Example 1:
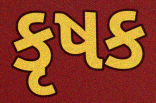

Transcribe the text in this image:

કૃષક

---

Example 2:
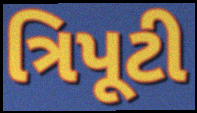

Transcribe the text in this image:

ત્રિપૂટી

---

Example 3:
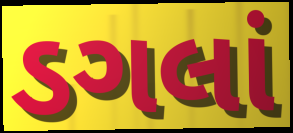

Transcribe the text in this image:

ડગલાં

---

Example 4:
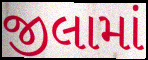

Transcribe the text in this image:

જીલામાં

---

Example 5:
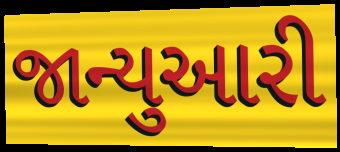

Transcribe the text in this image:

જાન્યુઆરી